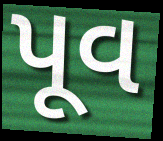
પૂવ